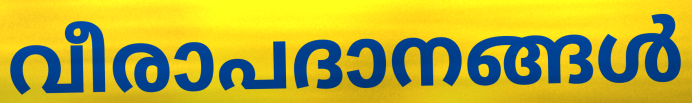
വീരാപദാനങ്ങൾ